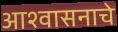
आश्वासनाचे